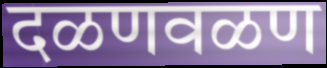
दळणवळण